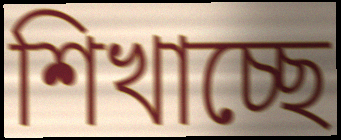
শিখাচ্ছে